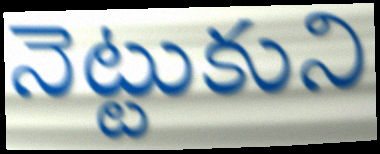
నెట్టుకుని